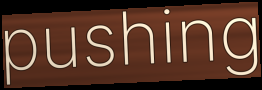
pushing